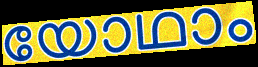
യോഥാം